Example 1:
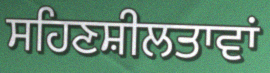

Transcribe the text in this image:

ਸਹਿਣਸ਼ੀਲਤਾਵਾਂ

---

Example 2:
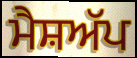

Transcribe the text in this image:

ਮੈਸ਼ਅੱਪ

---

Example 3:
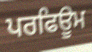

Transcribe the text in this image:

ਪਰਫਿਊਮ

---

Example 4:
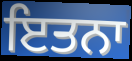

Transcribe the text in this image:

ਇਤਨਾ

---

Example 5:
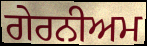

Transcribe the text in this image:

ਗੇਰਨੀਅਮ